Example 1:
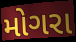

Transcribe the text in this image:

મોગરા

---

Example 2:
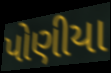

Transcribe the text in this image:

પોણીયા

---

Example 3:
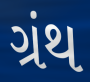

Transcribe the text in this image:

ગ્રંથ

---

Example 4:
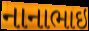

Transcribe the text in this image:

નાનાભાઇ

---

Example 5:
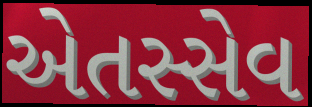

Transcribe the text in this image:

એતસ્સેવ